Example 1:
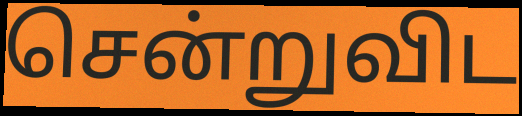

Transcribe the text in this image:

சென்றுவிட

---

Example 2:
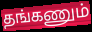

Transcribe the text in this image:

தங்கணும்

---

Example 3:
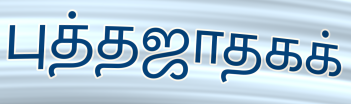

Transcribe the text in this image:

புத்தஜாதகக்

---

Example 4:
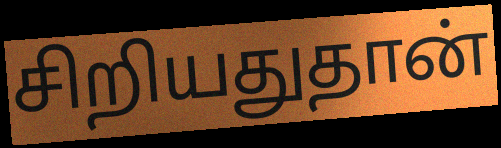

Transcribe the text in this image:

சிறியதுதான்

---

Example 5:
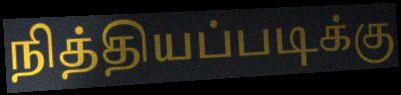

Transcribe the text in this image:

நித்தியப்படிக்கு